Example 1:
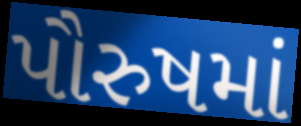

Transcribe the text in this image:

પૌરુષમાં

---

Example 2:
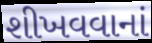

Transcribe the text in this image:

શીખવવાનાં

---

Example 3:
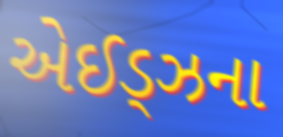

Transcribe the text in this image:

એઈડ્ઝના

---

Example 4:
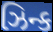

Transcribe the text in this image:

ઝિન્ક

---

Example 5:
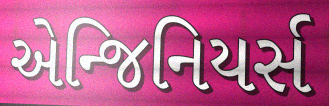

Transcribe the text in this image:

એન્જિનિયર્સ